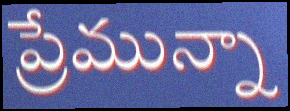
ప్రేమున్నా